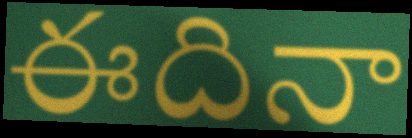
ఈదినా